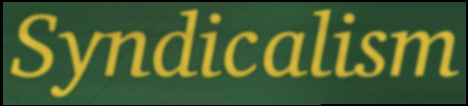
Syndicalism